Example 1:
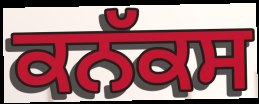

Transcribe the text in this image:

ਕਨੱਕਸ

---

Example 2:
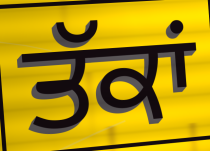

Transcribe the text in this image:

ਤੱਕਾਂ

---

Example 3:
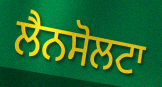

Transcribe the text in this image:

ਲੈਨਸੋਲਟਾ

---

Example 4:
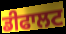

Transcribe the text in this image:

ਡੀਫਾਲਟ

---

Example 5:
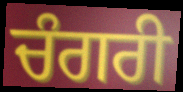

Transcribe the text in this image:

ਚੰਗਰੀ